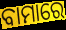
ବାମାରେ